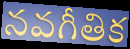
నవగీతిక